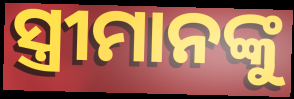
ସ୍ତ୍ରୀମାନଙ୍କୁ